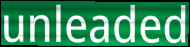
unleaded